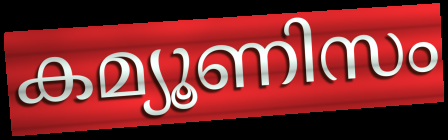
കമ്യൂണിസം